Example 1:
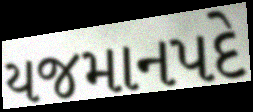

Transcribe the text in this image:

યજમાનપદે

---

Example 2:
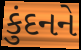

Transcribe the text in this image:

કુંદનને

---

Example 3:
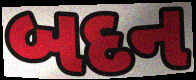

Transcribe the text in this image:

બદન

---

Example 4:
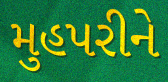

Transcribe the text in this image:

મુહપરીને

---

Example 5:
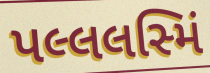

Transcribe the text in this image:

પલ્લલસ્મિં